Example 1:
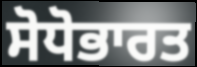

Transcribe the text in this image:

ਸੋਧੋਭਾਰਤ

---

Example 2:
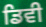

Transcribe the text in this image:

ਡਿਵੀ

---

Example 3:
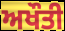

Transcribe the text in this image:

ਅਖੌਤੀ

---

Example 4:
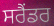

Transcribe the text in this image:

ਸਰੈਂਡਰ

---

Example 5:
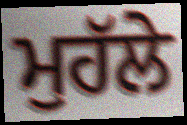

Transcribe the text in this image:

ਮੁਹੱਲੇ